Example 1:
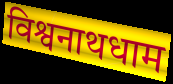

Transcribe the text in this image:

विश्वनाथधाम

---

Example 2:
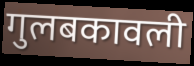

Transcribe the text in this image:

गुलबकावली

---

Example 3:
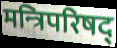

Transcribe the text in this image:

मन्त्रिपरिषद्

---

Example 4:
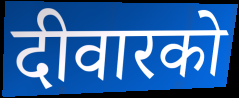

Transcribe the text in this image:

दीवारको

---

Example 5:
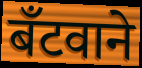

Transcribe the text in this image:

बँटवाने